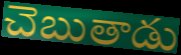
చెబుతాడు